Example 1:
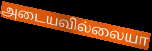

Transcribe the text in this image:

அடையவில்லையா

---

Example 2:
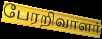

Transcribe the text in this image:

பேரறிவாளர்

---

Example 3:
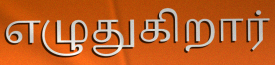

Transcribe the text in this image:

எழுதுகிறார்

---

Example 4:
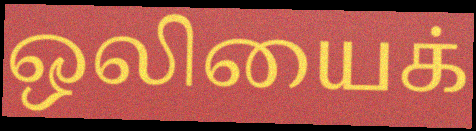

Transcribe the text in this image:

ஒலியைக்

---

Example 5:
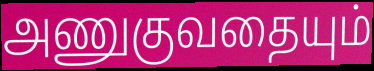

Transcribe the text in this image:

அணுகுவதையும்